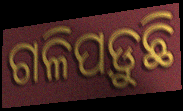
ଗଳିପଡ଼ୁଛି